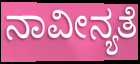
ನಾವೀನ್ಯತೆ